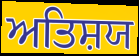
ਅਤਿਸ਼ਯ